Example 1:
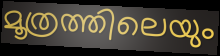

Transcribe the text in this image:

മൂത്രത്തിലെയും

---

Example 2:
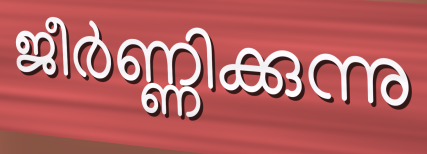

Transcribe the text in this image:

ജീർണ്ണിക്കുന്നു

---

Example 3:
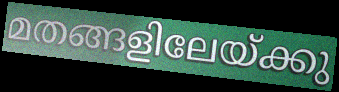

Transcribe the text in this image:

മതങ്ങളിലേയ്ക്കു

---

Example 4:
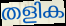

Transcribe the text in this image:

തളിക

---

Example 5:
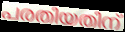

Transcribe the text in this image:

പരതിയതിന്